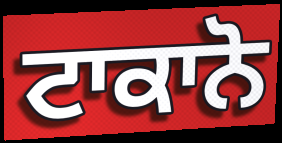
ਟਾਕਾਨੋ